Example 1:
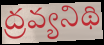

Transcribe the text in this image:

ద్రవ్యనిథి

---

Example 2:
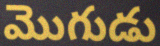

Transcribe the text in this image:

మొగుడు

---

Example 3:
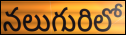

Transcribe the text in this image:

నలుగురిలో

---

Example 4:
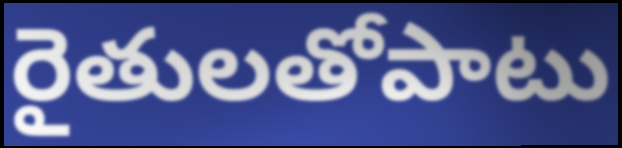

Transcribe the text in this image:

రైతులతోపాటు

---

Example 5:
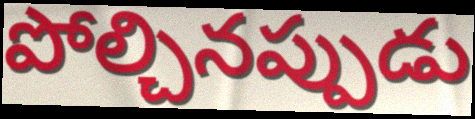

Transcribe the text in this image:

పోల్చినప్పుడు